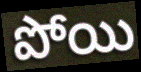
పోయి